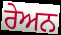
ਰੇਅਨ